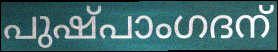
പുഷ്പാംഗദന്